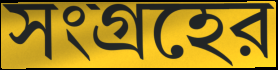
সংগ্রহের